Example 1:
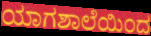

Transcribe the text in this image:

ಯಾಗಶಾಲೆಯಿಂದ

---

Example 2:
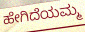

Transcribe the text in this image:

ಹೇಗಿದೆಯಮ್ಮ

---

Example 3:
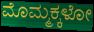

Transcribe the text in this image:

ಮೊಮ್ಮಕ್ಕಳೋ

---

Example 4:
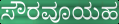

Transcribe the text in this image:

ಸೌರವೂಯಹ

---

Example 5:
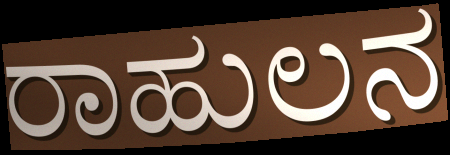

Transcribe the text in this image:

ರಾಹುಲನ